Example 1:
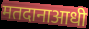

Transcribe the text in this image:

मतदानाआधी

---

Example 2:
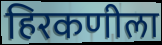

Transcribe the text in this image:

हिरकणीला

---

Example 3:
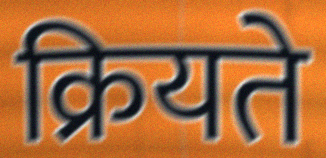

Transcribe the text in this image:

क्रियते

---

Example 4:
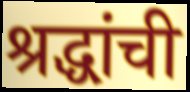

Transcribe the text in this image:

श्रद्धांची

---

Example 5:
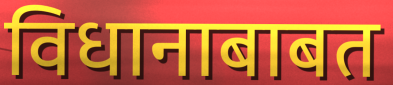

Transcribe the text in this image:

विधानाबाबत